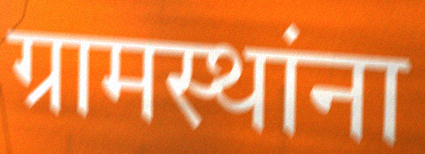
ग्रामस्थांना